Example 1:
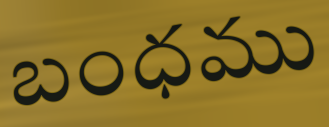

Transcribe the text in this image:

బంధము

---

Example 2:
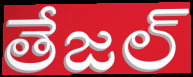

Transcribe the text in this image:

తేజల్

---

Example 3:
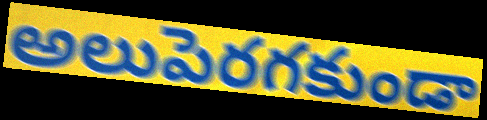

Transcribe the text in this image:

అలుపెరగకుండా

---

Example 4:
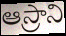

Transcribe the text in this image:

ఆస్రాని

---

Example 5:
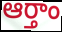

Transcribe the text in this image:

ఆర్తాం